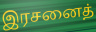
இரசனைத்